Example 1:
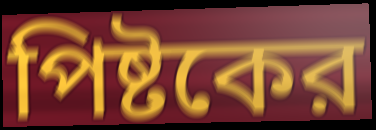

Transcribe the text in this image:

পিষ্টকের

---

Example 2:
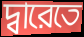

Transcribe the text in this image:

দ্বারেতে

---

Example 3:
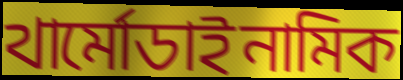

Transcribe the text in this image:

থার্মোডাইনামিক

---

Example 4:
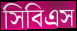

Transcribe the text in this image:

সিবিএস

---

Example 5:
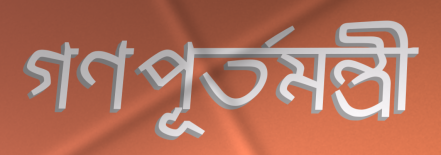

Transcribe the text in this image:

গণপূর্তমন্ত্রী